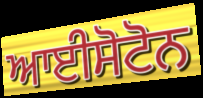
ਆਈਸੋਟੋਨ